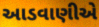
આડવાણીએ